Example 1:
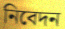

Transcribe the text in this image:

নিবেদন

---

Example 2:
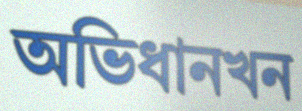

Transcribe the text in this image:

অভিধানখন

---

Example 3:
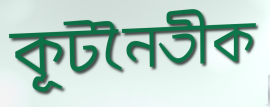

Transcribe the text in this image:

কূটনৈতীক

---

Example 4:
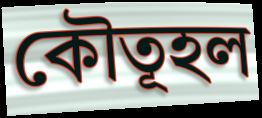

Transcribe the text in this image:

কৌতূহল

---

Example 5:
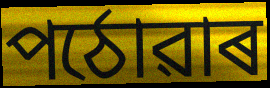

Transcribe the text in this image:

পঠোৱাৰ